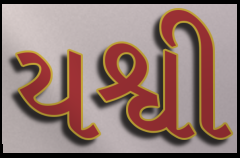
યશ્વી